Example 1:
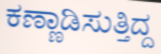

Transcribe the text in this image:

ಕಣ್ಣಾಡಿಸುತ್ತಿದ್ದ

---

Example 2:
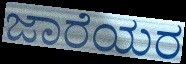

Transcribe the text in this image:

ಜಾರೆಯರ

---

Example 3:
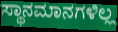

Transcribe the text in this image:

ಸ್ಥಾನಮಾನಗಳಿಲ್ಲ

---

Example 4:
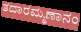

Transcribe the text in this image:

ತದಾರಮ್ಮಣಾನಂ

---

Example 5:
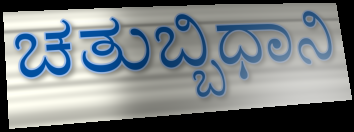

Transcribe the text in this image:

ಚತುಬ್ಬಿಧಾನಿ